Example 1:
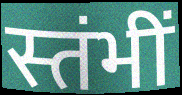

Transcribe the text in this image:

स्तंभीं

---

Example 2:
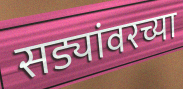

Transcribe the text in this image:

सड्यांवरच्या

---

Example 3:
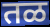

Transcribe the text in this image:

तळ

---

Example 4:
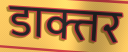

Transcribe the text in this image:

डाक्तर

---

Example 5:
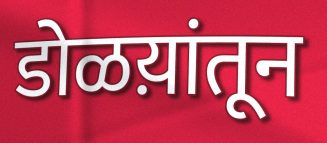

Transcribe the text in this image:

डोळय़ांतून